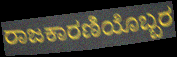
ರಾಜಕಾರಣಿಯೊಬ್ಬರ